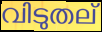
വിടുതല്